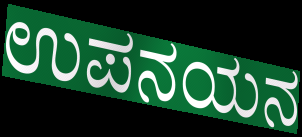
ಉಪನಯನ